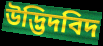
উদ্ভিদবিদ